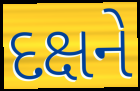
દક્ષને